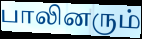
பாலினரும்